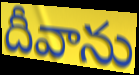
దీవాను